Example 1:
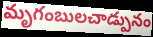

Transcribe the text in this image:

మృగంబులచాడ్పునం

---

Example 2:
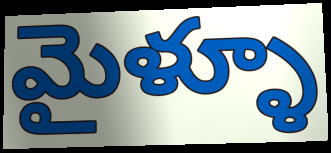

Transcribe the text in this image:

మైళ్ళూ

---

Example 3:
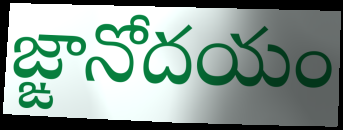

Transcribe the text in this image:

జ్ఙానోదయం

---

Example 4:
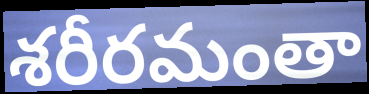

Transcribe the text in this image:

శరీరమంతా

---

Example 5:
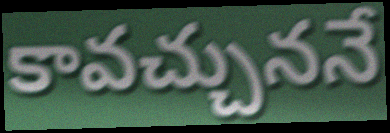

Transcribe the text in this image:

కావచ్చుననే